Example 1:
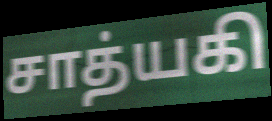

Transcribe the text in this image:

சாத்யகி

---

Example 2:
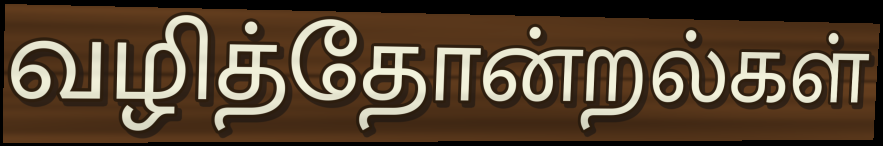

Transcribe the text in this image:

வழித்தோன்றல்கள்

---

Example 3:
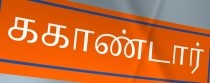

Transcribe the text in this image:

ககாண்டார்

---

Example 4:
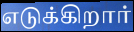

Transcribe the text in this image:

எடுக்கிறார்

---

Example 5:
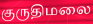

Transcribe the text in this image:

குருதிமலை